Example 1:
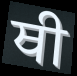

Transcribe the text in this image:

ਥੀ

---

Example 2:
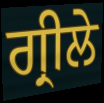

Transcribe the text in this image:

ਗ੍ਰੀਲੇ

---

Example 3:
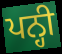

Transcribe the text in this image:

ਪਨ੍ਹੀ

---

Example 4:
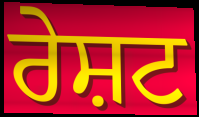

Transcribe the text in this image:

ਰੇਸ਼ਟ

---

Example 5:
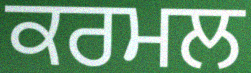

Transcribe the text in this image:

ਕਰਮਲ